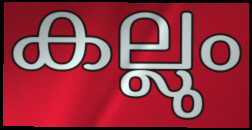
കല്ലും